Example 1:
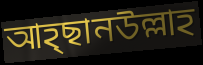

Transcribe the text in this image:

আহ্ছানউল্লাহ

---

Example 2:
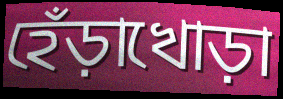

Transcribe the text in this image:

হেঁড়াখোড়া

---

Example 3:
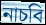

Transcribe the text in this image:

নাচবি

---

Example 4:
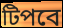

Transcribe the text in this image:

টিপবে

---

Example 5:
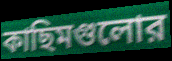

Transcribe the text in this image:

কাছিমগুলোর